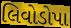
લિવોડોપા